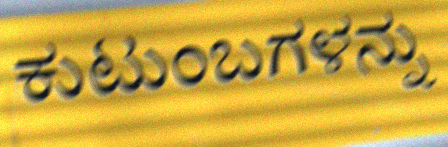
ಕುಟುಂಬಗಳನ್ನು